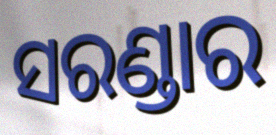
ସରଣ୍ଡାର